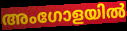
അംഗോളയിൽ